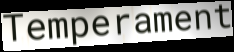
Temperament